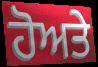
ਹੋਅਤੇ